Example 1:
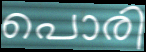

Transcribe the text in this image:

പൊരി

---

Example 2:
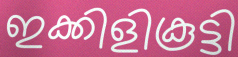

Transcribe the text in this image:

ഇക്കിളികൂട്ടി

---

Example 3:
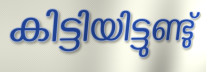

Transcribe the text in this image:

കിട്ടിയിട്ടുണ്ടു്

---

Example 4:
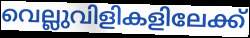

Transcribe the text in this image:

വെല്ലുവിളികളിലേക്ക്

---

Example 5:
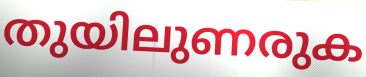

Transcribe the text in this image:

തുയിലുണരുക